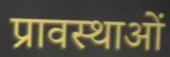
प्रावस्थाओं